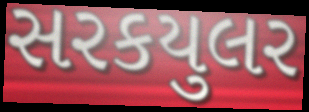
સરકયુલર